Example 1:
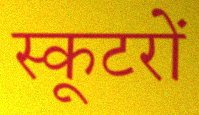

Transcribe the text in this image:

स्कूटरों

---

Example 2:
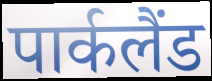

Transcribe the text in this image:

पार्कलैंड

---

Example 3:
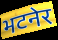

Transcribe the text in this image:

भटनेर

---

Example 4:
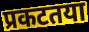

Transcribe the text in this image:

प्रकटतया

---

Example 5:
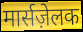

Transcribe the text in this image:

मार्सज़ेलक